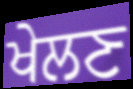
ਖੇਲਣ